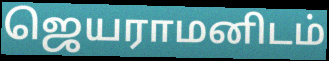
ஜெயராமனிடம்